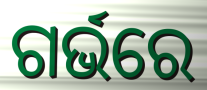
ଗର୍ଭରେ